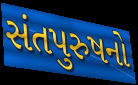
સંતપુરુષનો